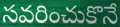
సవరించుకొనే